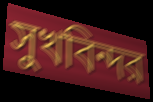
সুখবিন্দর